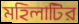
মহিলাটির